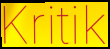
Kritik